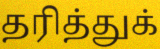
தரித்துக்